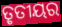
ତୃତୀୟର